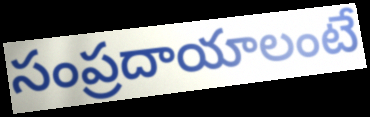
సంప్రదాయాలంటే